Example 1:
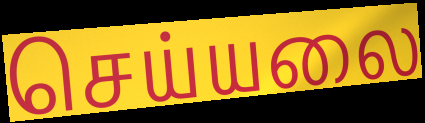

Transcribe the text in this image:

செய்யலை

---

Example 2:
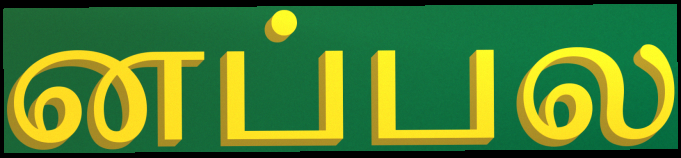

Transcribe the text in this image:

னப்பல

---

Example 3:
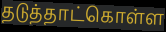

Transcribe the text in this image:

தடுத்தாட்கொள்ள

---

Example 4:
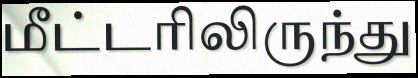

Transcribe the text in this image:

மீட்டரிலிருந்து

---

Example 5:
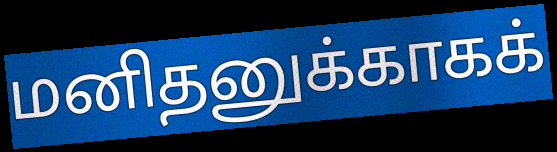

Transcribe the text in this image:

மனிதனுக்காகக்